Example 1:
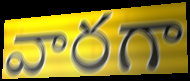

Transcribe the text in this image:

వారగా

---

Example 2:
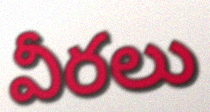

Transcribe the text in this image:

వీరలు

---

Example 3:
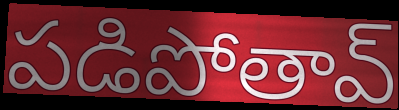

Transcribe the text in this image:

పడిపోతావ్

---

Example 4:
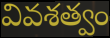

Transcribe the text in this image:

వివశత్వం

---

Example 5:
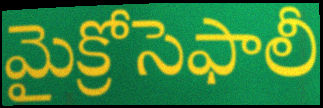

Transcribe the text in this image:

మైక్రోసెఫాలీ